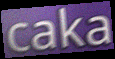
caka